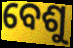
ବେଶୁ